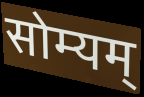
सोम्यम्